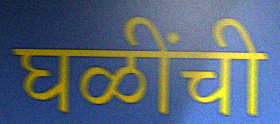
घळींची